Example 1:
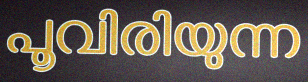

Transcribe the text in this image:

പൂവിരിയുന്ന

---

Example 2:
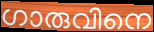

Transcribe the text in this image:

ഗാരുവിനെ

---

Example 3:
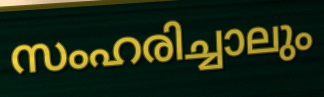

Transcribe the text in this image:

സംഹരിച്ചാലും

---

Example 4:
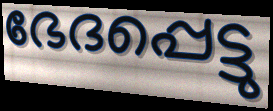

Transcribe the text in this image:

ഭേദപ്പെട്ടു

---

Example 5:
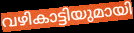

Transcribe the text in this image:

വഴികാട്ടിയുമായി